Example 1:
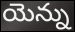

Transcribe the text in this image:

యెన్ను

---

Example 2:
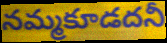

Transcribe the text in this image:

నమ్మకూడదనీ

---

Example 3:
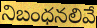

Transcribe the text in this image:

నిబంధనలివే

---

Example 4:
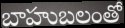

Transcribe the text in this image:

బాహుబలంతో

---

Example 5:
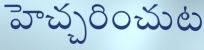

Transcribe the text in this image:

హెచ్చరించుట